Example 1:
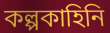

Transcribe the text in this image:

কল্পকাহিনি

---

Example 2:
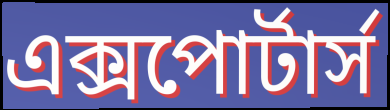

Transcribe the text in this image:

এক্সপোর্টার্স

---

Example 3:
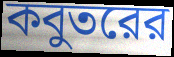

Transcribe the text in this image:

কবুতরের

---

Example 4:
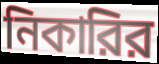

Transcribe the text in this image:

নিকারির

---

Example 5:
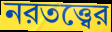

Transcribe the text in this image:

নরতত্ত্বের